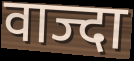
वाज्दा